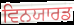
ਵਿਨਯਾਰਡ